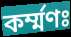
কর্ম্মণঃ